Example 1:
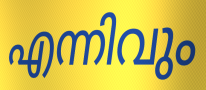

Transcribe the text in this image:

എന്നിവും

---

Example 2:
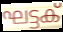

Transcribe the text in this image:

ഘട്ടക്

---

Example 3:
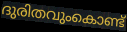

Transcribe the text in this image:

ദുരിതവുംകൊണ്ട്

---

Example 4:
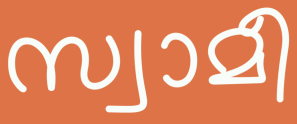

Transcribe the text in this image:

സ്വാമീ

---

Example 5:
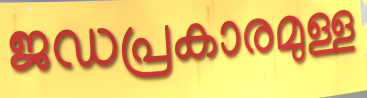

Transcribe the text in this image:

ജഡപ്രകാരമുള്ള